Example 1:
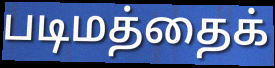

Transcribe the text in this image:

படிமத்தைக்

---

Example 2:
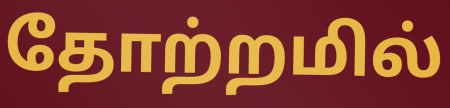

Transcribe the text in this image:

தோற்றமில்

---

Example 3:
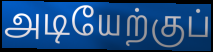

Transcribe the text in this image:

அடியேற்குப்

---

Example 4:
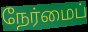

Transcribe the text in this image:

நேர்மைப்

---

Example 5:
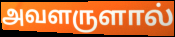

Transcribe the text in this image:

அவளருளால்